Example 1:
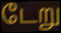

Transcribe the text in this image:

டேறு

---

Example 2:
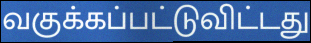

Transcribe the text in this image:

வகுக்கப்பட்டுவிட்டது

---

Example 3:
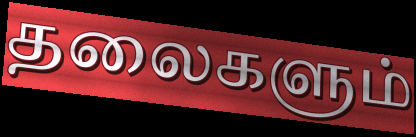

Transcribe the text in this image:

தலைகளும்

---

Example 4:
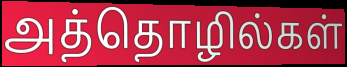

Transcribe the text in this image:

அத்தொழில்கள்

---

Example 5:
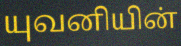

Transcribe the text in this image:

யுவனியின்